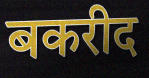
बकरीद